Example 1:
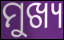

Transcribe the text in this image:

ମୁଖ୍ୟ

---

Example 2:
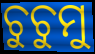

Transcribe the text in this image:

ଚୁଚୁମୁ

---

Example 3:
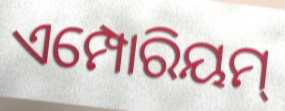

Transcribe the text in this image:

ଏମ୍ପୋରିୟମ୍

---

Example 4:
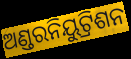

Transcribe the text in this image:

ଅଣ୍ଡରନିୟୁଟ୍ରିଶନ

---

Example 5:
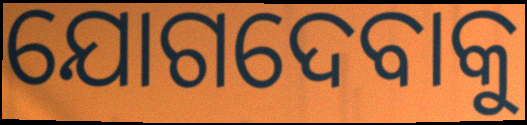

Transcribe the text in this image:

ଯୋଗଦେବାକୁ